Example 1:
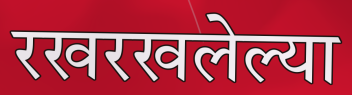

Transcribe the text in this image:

रखरखलेल्या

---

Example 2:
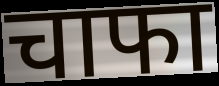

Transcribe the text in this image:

चाफा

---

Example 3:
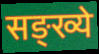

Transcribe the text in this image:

सङ्ख्ये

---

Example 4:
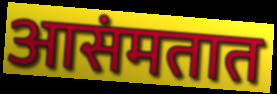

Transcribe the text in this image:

आसंमतात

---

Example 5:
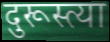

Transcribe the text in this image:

दुरूस्त्या